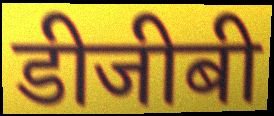
डीजीबी